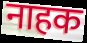
नाहक